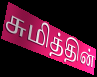
சுமித்தின்